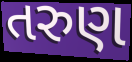
તરુણ